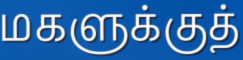
மகளுக்குத்